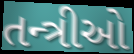
તન્ત્રીઓ